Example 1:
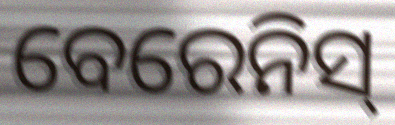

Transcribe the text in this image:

ବେରେନିସ୍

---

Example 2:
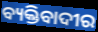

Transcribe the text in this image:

ବ୍ୟକ୍ତିବାଦୀର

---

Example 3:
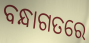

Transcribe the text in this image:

ବନ୍ଧାଗତରେ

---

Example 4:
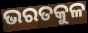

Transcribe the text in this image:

ଭରତକୁଳ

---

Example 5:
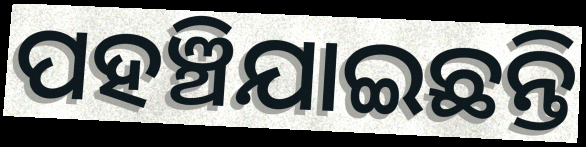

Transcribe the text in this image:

ପହଞ୍ଚିଯାଇଛନ୍ତି